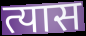
त्‍यास